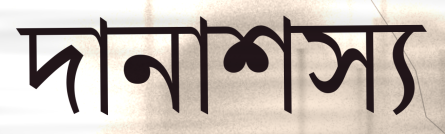
দানাশস্য